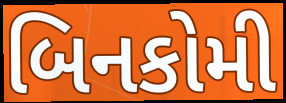
બિનકોમી